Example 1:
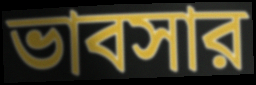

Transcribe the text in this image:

ভাবসার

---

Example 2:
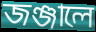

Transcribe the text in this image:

জঞ্জালে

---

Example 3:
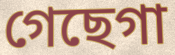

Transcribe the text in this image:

গেছেগা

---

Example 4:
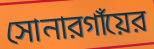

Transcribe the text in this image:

সোনারগাঁয়ের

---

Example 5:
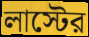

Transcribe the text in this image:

লাস্টের